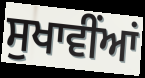
ਸੁਖਾਵੀਂਆਂ